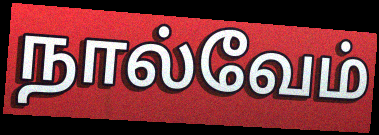
நால்வேம்